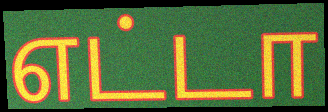
எட்டா